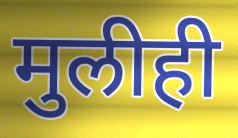
मुलीही